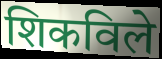
शिकविले